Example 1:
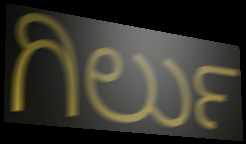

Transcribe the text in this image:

ಗಿರ್ಲು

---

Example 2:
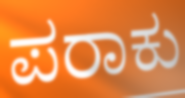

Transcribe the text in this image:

ಪರಾಕು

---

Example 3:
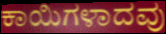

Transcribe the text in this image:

ಕಾಯಿಗಳಾದವು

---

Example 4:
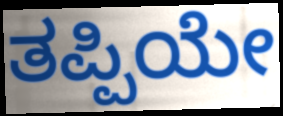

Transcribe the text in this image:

ತಪ್ಪಿಯೇ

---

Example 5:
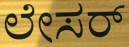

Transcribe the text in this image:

ಲೇಸರ್